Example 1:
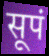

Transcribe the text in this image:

सूपं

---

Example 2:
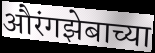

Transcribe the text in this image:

औरंगझेबाच्या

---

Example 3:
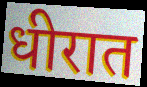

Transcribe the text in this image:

धीरात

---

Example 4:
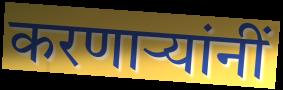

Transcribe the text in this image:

करणार्‍यांनीं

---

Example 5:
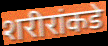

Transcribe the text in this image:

शरीरांकडे